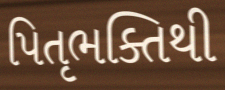
પિતૃભક્તિથી